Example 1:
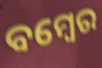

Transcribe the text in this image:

ବମ୍ୱେର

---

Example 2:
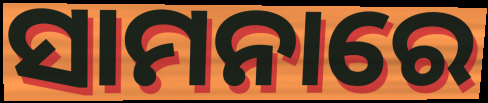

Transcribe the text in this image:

ସାମନାରେ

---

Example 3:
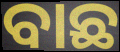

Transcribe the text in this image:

ବାଛ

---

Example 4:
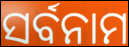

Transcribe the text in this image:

ସର୍ବନାମ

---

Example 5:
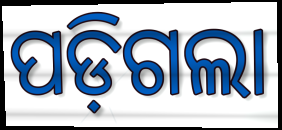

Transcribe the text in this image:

ପଡ଼ିଗଲା